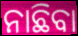
ନାଛିବା